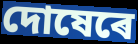
দোষেৰে